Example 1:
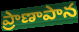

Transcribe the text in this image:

ప్రాణాపాన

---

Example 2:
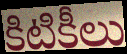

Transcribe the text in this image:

కిటికీలు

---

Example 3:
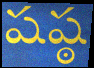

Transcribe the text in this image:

షష్ఠ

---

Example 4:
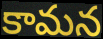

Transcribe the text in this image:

కామన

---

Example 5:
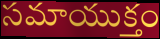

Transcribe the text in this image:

సమాయుక్తం